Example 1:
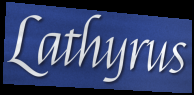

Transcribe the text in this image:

Lathyrus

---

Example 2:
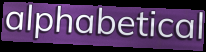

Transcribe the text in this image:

alphabetical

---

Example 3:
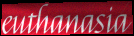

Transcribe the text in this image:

euthanasia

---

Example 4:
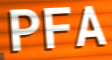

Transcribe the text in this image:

PFA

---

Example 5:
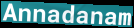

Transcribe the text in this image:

Annadanam